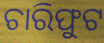
ଚାରିଫୁଟ